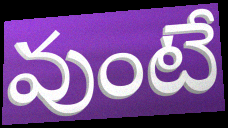
వుంటే